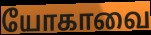
யோகாவை